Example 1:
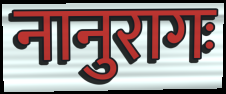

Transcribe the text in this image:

नानुरागः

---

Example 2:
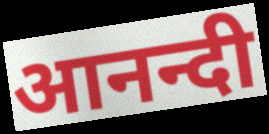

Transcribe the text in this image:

आनन्दी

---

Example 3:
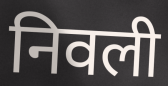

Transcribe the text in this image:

निवली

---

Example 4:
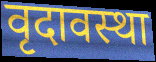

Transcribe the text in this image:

वृदावस्था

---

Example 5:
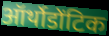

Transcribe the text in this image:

ऑर्थोडोंटिक